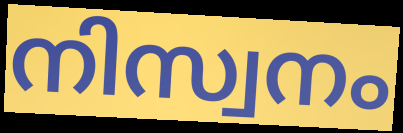
നിസ്വനം